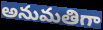
అనుమతిగా